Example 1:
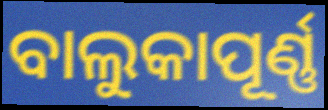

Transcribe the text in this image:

ବାଲୁକାପୂର୍ଣ୍ଣ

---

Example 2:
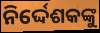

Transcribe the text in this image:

ନିର୍ଦ୍ଦେଶକଙ୍କୁ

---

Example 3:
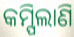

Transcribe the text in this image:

କମ୍ପିଲାଣି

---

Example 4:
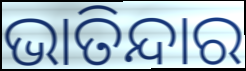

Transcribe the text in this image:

ଭାତିନ୍ଦାର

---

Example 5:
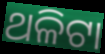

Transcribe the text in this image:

ଥଳିଟା